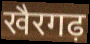
खैरगढ़